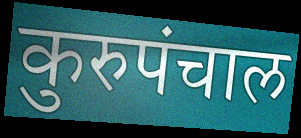
कुरुपंचाल